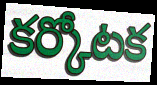
కర్కోటక